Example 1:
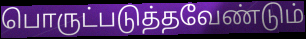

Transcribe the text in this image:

பொருட்படுத்தவேண்டும்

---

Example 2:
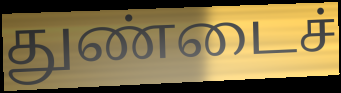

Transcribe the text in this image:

துண்டைச்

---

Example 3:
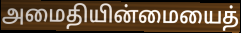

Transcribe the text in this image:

அமைதியின்மையைத்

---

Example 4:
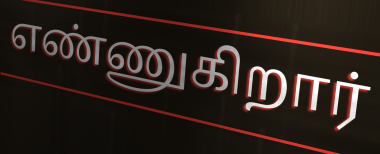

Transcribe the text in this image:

எண்ணுகிறார்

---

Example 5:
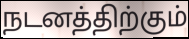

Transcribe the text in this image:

நடனத்திற்கும்